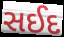
સઈદ